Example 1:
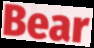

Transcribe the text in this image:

Bear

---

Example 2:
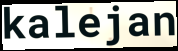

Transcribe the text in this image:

kalejan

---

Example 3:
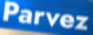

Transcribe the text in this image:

Parvez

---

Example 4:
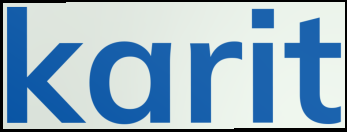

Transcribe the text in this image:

karit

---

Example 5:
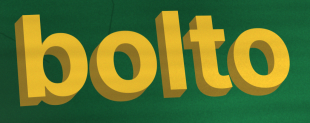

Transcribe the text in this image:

bolto